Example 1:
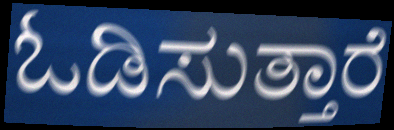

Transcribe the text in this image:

ಓಡಿಸುತ್ತಾರೆ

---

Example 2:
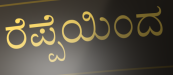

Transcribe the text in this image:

ರೆಪ್ಪೆಯಿಂದ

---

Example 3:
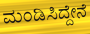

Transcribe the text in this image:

ಮಂಡಿಸಿದ್ದೇನೆ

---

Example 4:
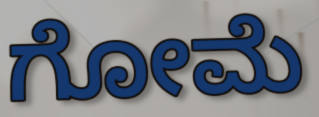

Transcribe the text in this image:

ಗೋಮೆ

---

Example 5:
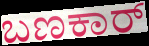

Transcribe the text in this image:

ಬಣಕಾರ್